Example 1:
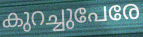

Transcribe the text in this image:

കുറച്ചുപേരേ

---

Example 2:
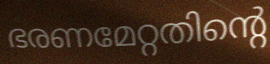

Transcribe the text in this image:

ഭരണമേറ്റതിന്റെ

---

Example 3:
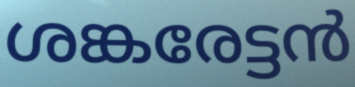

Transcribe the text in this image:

ശങ്കരേട്ടൻ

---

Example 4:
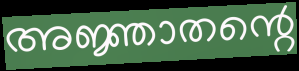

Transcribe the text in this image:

അജ്ഞാതന്റെ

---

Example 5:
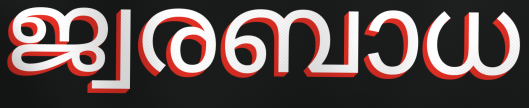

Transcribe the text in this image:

ജ്വരബാധ